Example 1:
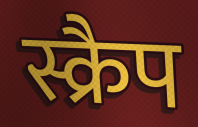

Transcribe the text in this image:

स्क्रैप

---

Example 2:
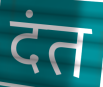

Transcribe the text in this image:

दंत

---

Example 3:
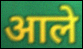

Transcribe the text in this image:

आले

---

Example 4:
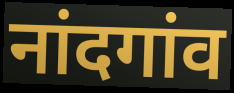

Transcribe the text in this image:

नांदगांव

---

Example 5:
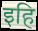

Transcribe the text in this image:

इहि